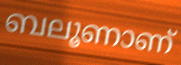
ബലൂണാണ്